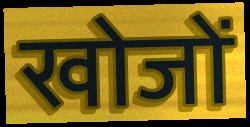
खोजों